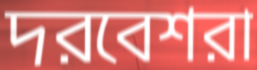
দরবেশরা